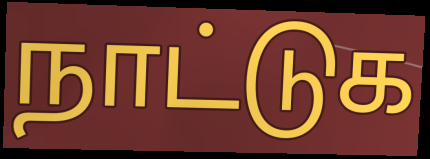
நாட்டுக